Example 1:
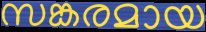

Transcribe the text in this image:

സങ്കരമായ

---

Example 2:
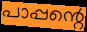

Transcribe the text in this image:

പാപ്പന്റെ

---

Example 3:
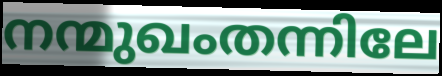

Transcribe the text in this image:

നന്മുഖംതന്നിലേ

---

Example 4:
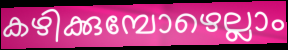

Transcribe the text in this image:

കഴിക്കുമ്പോഴെല്ലാം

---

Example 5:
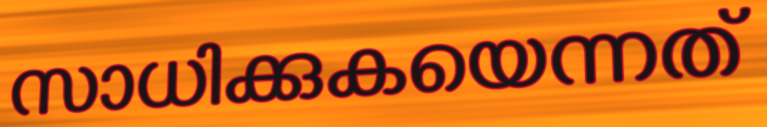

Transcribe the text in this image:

സാധിക്കുകയെന്നത്